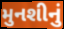
મુનશીનું